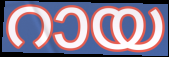
റായ